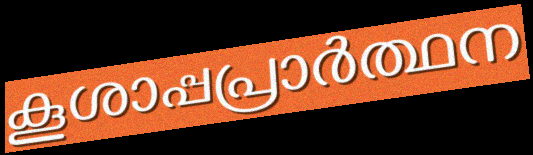
കൂശാപ്പപ്രാർത്ഥന